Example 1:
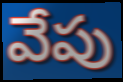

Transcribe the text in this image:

వేపు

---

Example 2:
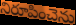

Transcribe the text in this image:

నిరూపించెను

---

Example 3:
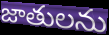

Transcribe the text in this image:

జాతులను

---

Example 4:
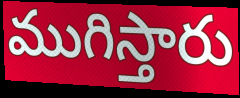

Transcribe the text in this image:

ముగిస్తారు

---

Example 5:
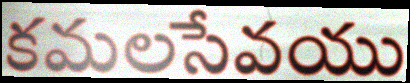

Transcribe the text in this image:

కమలసేవయు